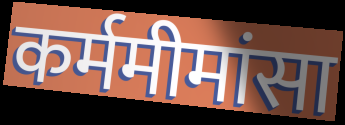
कर्ममीमांसा